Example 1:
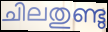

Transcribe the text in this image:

ചിലതുണ്ടു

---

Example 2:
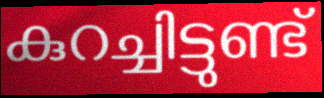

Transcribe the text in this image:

കുറച്ചിട്ടുണ്ട്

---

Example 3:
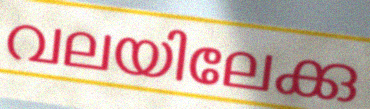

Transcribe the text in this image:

വലയിലേക്കു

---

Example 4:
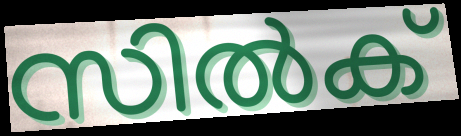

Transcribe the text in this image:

സിൽക്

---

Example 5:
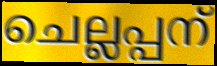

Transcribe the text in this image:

ചെല്ലപ്പന്